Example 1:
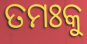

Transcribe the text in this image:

ତମଃକୁ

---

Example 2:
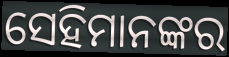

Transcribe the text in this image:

ସେହିମାନଙ୍କର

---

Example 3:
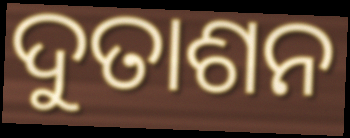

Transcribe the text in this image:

ଦୁତାଶନ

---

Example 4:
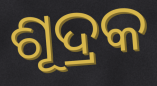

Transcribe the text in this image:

ଶୂଦ୍ରକ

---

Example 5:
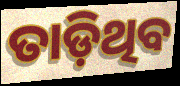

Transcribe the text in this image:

ତାଡ଼ିଥିବ